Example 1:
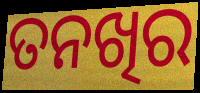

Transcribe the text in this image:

ତନଖିର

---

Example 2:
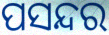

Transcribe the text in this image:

ପସନ୍ଦର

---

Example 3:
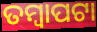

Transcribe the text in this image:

ତମ୍ବାପଟା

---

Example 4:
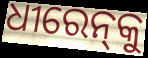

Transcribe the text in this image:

ଧୀରେନ୍‌କୁ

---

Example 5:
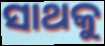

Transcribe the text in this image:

ସାଥକୁ